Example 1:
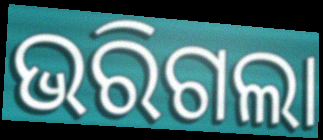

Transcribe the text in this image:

ଭରିଗଲା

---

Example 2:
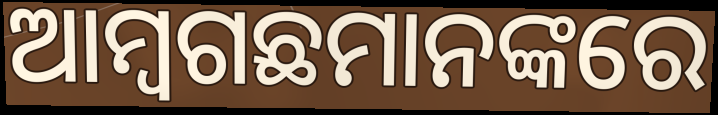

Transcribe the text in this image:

ଆମ୍ବଗଛମାନଙ୍କରେ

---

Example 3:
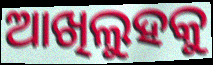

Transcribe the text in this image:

ଆଖିଲୁହକୁ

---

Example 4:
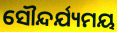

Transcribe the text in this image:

ସୌନ୍ଦର୍ଯ୍ୟମୟ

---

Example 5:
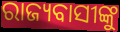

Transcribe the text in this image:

ରାଜ୍ୟବାସୀଙ୍କୁ